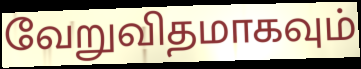
வேறுவிதமாகவும்